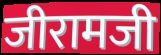
जीरामजी